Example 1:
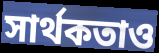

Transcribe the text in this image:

সার্থকতাও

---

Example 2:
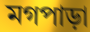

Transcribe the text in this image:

মগপাড়া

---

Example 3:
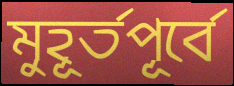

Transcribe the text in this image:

মুহূর্তপূর্বে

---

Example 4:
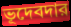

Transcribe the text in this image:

ভূদেবদার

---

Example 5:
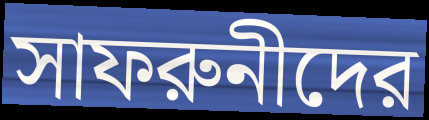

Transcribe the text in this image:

সাফরুনীদের